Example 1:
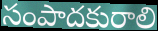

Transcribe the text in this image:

సంపాదకురాలి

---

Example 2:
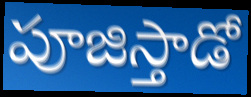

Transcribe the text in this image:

పూజిస్తాడో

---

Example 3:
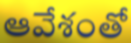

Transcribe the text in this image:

ఆవేశంతో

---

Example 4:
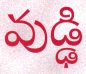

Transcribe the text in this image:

వుడ్ఢి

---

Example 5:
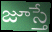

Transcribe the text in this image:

జూస్తే